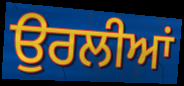
ਉਰਲੀਆਂ